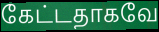
கேட்டதாகவே